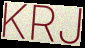
KRJ